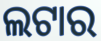
ଲଟାର